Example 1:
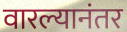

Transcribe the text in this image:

वारल्यानंतर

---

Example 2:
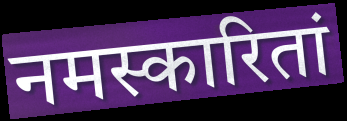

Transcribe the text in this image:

नमस्कारितां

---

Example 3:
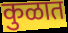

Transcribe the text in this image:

कुळात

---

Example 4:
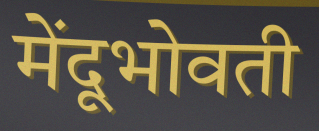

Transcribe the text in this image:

मेंदूभोवती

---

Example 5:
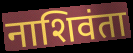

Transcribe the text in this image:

नाशिवंता